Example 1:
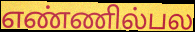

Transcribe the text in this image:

எண்ணில்பல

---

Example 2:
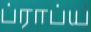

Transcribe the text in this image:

ப்ராப்ய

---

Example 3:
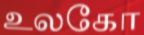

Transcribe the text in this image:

உலகோ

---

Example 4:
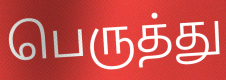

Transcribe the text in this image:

பெருத்து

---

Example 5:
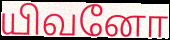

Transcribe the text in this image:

யிவனோ